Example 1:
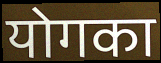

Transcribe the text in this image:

योगका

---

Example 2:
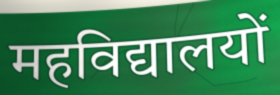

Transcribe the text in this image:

महविद्यालयों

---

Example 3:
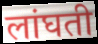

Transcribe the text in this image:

लांघती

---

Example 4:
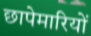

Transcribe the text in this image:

छापेमारियों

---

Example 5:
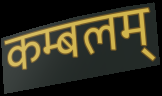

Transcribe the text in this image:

कम्बलम्